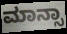
ಮಾನ್ಸಾ